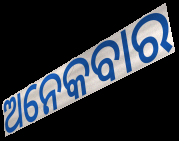
ଅନେକବାର